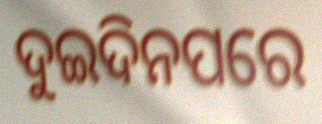
ଦୁଇଦିନପରେ